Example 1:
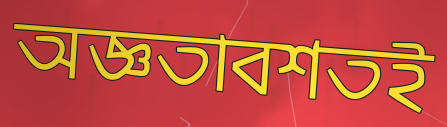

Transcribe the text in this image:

অজ্ঞতাবশতই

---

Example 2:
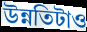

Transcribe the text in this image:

উন্নতিটাও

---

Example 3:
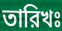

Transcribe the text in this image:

তারিখঃ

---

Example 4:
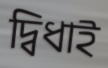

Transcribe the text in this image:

দ্বিধাই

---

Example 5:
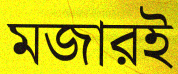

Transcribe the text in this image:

মজারই